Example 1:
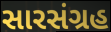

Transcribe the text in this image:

સારસંગ્રહ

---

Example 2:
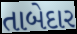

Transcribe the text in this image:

તાબેદાર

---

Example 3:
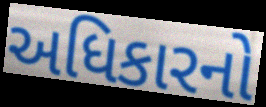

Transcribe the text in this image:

અધિકારનો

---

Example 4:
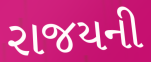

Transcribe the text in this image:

રાજયની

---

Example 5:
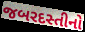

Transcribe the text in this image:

જબરદસ્તીનો